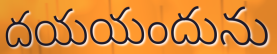
దయయందును